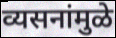
व्यसनांमुळे